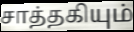
சாத்தகியும்